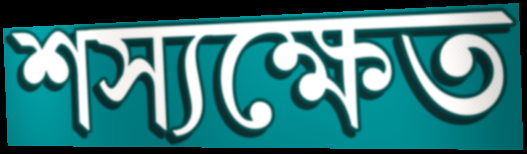
শস্যক্ষেত